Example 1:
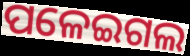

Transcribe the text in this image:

ପଳେଇଗଲ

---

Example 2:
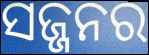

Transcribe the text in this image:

ସଜ୍ଜନର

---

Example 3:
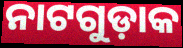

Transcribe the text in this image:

ନାଟଗୁଡ଼ାକ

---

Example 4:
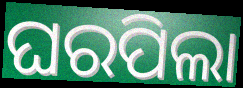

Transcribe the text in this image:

ଘରପିଲା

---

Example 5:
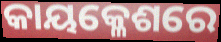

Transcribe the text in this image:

କାୟକ୍ଳେଶରେ